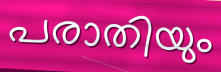
പരാതിയും